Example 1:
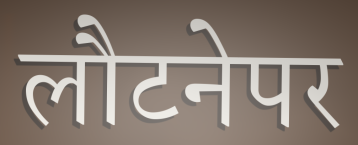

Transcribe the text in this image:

लौटनेपर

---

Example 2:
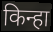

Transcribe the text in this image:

किन्हा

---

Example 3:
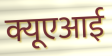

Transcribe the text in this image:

क्यूएआई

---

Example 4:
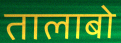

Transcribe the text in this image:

तालाबो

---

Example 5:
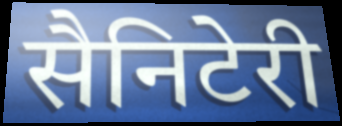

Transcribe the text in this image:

सैनिटेरी